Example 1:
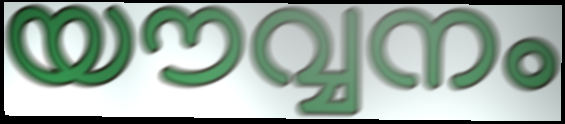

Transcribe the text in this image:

യൗവ്വനം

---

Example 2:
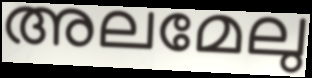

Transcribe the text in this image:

അലമേലു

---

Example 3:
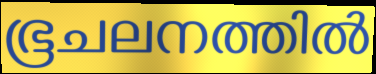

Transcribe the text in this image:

ഭൂചലനത്തിൽ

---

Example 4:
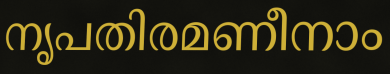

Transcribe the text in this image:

നൃപതിരമണീനാം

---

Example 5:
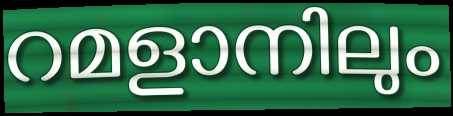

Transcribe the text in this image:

റമളാനിലും